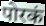
पोरकं